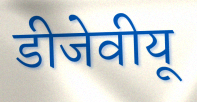
डीजेवीयू